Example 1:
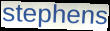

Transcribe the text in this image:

stephens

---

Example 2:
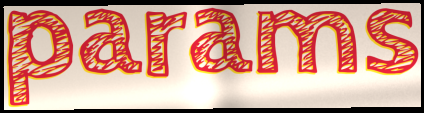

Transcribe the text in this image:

params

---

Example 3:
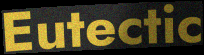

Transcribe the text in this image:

Eutectic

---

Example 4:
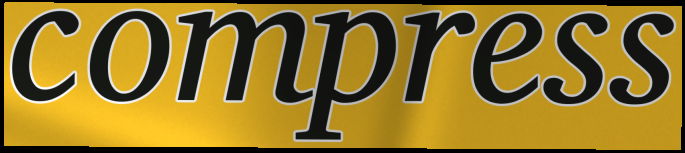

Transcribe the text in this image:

compress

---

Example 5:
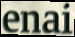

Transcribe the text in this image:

enai